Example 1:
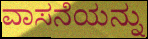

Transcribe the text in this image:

ವಾಸನೆಯನ್ನು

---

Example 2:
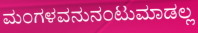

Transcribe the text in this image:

ಮಂಗಳವನುನಂಟುಮಾಡಲ್ಲ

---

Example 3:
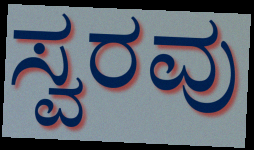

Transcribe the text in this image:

ಸ್ವರವು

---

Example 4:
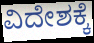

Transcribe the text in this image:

ವಿದೇಶಕ್ಕೆ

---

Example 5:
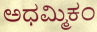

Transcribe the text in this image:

ಅಧಮ್ಮಿಕಂ